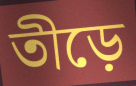
তীড়ে